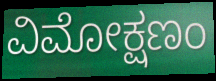
ವಿಮೋಕ್ಷಣಂ